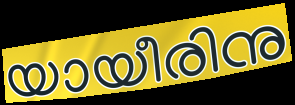
യായീരിനു